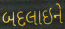
બદલાઇને